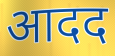
आदद